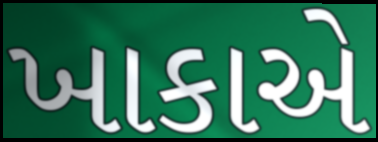
ખાકાએ